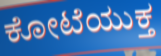
ಕೋಟೆಯುಕ್ತ